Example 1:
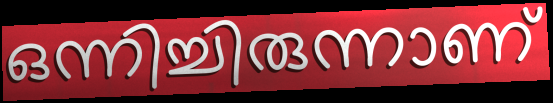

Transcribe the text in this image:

ഒന്നിച്ചിരുന്നാണ്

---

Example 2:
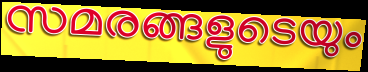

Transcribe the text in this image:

സമരങ്ങളുടെയും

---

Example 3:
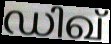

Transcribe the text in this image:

ഡിഖ്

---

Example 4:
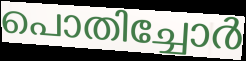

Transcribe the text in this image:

പൊതിച്ചോർ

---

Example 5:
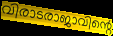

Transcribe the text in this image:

വിരാടരാജാവിന്റെ